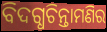
ବିଦଗ୍ଧଚିନ୍ତାମଣିର